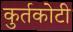
कुर्तकोटी